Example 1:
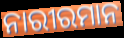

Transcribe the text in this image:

ନାରୀରମାନ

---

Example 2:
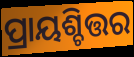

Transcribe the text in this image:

ପ୍ରାୟଶ୍ଚିତ୍ତର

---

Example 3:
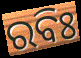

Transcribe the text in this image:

ରବିଃ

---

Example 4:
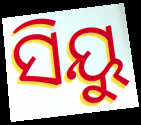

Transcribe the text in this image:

ସିୟୁ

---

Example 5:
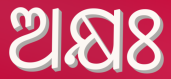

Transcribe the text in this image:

ଅକ୍ଷଃ